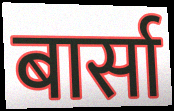
बार्सा